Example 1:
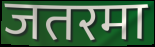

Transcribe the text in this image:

जतरमा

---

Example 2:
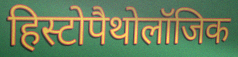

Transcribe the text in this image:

हिस्टोपैथोलॉजिक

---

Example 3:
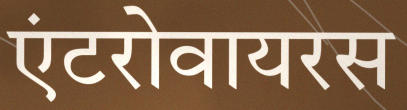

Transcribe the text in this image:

एंटरोवायरस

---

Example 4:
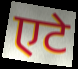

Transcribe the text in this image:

एटे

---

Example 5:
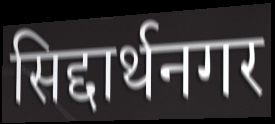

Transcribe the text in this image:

सिद्दार्थनगर